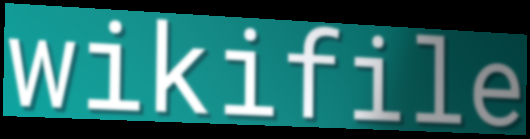
wikifile